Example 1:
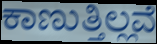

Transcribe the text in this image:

ಕಾಣುತ್ತಿಲ್ಲವೆ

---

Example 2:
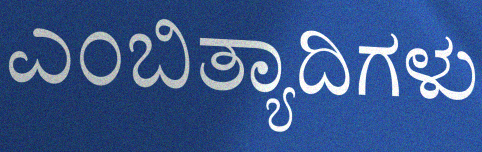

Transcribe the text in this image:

ಎಂಬಿತ್ಯಾದಿಗಳು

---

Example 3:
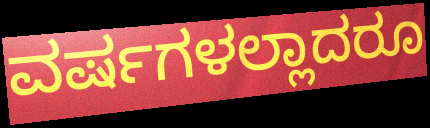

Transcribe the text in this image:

ವರ್ಷಗಳಲ್ಲಾದರೂ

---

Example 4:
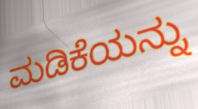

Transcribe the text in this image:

ಮಡಿಕೆಯನ್ನು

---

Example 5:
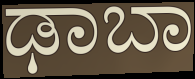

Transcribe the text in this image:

ಢಾಬಾ